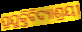
ପ୍ରଯୁକ୍ତିବିଦ୍ୟାଶ୍ରୟୀ